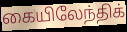
கையிலேந்திக்